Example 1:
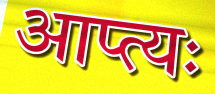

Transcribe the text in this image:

आप्त्यः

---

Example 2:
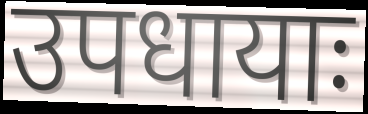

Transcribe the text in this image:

उपधायाः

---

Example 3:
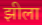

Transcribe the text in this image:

झीला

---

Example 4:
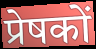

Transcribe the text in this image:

प्रेषकों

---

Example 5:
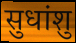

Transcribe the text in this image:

सुधांशु